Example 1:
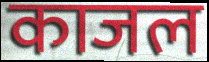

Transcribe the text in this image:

काजल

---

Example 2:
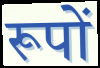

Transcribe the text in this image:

रूपों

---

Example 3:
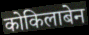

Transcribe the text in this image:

कोकिलाबेन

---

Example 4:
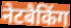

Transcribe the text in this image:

नेटबैकिंग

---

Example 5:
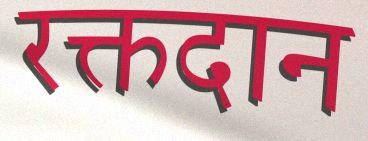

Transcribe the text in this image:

रक्तदान